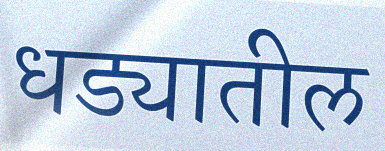
धड्यातील